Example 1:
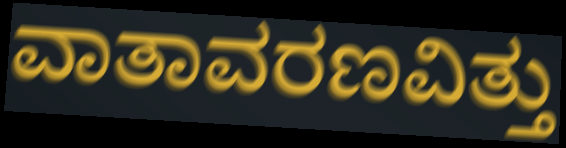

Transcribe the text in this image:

ವಾತಾವರಣವಿತ್ತು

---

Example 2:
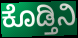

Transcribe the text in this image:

ಕೊಡ್ತಿನಿ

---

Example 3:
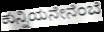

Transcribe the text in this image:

ಕುನ್ನಿಯನೇನೆಂಬೆ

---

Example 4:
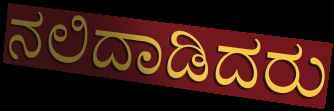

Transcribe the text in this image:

ನಲಿದಾಡಿದರು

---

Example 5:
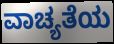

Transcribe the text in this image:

ವಾಚ್ಯತೆಯ